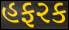
હફરક